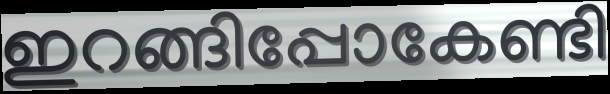
ഇറങ്ങിപ്പോകേണ്ടി